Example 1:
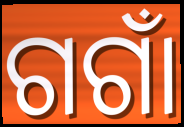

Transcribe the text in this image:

ଗଗାଁ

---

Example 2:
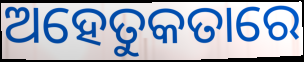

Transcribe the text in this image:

ଅହେତୁକତାରେ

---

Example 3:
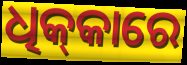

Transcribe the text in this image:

ଧିକ୍‌କାରେ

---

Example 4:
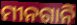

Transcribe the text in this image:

ମୀନଗାନି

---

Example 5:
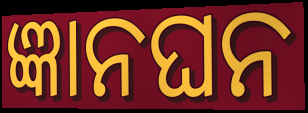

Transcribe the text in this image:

ଜ୍ଞାନଘନ